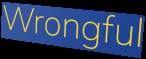
Wrongful